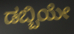
ಡಬ್ಬಿಯೇ